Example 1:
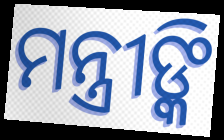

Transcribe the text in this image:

ମନ୍ତ୍ରୀଙ୍କି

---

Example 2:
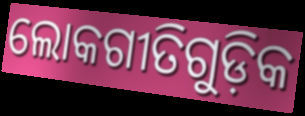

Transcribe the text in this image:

ଲୋକଗୀତିଗୁଡ଼ିକ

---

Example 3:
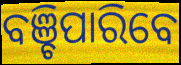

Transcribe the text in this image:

ବଞ୍ଚିପାରିବେ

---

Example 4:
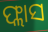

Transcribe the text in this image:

ଫ୍ଲାସ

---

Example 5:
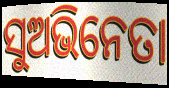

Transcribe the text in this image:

ସୁଅଭିନେତା